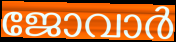
ജോവാർ